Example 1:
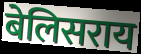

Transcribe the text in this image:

बेलिसराय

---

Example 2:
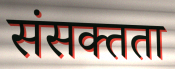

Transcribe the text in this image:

संसक्तता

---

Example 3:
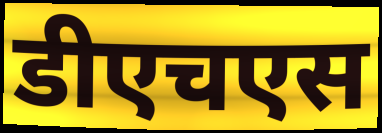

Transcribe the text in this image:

डीएचएस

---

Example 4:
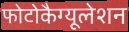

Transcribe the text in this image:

फोटोकैग्यूलेशन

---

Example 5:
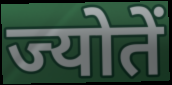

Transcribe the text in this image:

ज्योतें